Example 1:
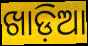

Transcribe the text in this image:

ଖାଡ଼ିଆ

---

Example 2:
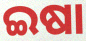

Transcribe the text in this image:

ଇଷା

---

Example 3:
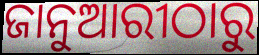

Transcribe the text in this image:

ଜାନୁଆରୀଠାରୁ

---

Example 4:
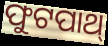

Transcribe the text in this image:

ଫୁଟପାଥ୍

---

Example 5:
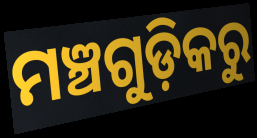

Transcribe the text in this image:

ମଞ୍ଚଗୁଡ଼ିକରୁ